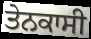
ਤੇਨਕਾਸੀ